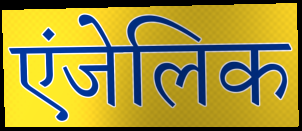
एंजेलिक